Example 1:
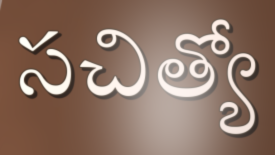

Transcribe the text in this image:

సచిత్యో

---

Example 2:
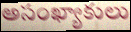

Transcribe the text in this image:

అసంఖ్యాకులు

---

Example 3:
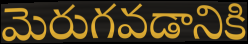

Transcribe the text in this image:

మెరుగవడానికి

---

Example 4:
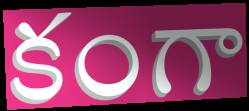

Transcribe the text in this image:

కంగా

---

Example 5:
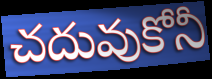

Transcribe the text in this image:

చదువుకోనీ